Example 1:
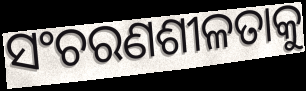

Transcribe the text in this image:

ସଂଚରଣଶୀଳତାକୁ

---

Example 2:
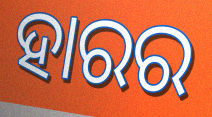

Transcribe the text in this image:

ହାରର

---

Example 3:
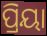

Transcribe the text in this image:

ପ୍ରିୟା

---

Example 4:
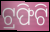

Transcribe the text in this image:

ଟ୍ରଫିଟି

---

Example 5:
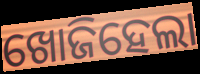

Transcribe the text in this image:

ଖୋଜିହେଲା